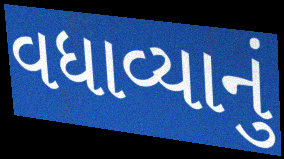
વધાવ્યાનું